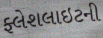
ફ્લેશલાઇટની